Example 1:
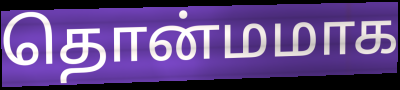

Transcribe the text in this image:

தொன்மமாக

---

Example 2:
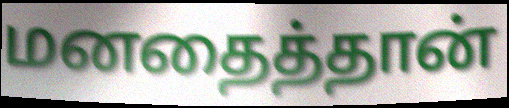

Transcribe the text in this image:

மனதைத்தான்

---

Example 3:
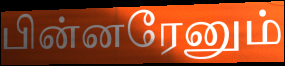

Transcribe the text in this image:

பின்னரேனும்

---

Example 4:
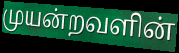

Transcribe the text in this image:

முயன்றவளின்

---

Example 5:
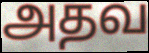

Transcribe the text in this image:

அதவ